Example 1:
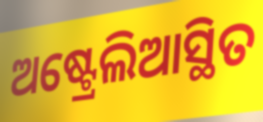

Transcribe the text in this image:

ଅଷ୍ଟ୍ରେଲିଆସ୍ଥିତ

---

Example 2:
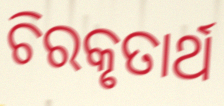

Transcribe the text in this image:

ଚିରକୃତାର୍ଥ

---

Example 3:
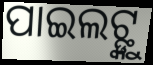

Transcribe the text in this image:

ପାଇଲଟ୍ଙ୍କୁ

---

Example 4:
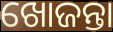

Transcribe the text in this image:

ଖୋଜନ୍ତା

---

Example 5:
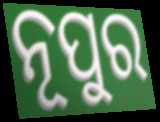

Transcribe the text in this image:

ନୂପୁର